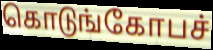
கொடுங்கோபச்